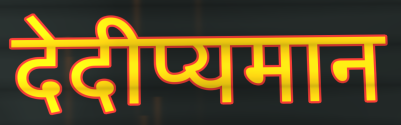
देदीप्यमान